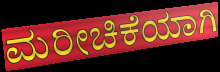
ಮರೀಚಿಕೆಯಾಗಿ